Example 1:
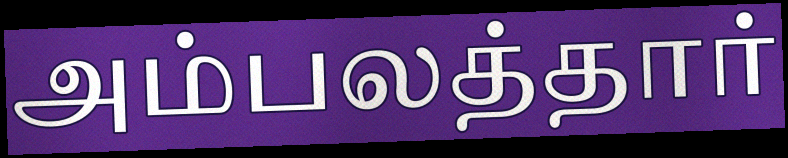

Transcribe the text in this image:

அம்பலத்தார்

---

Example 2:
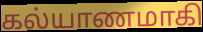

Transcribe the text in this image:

கல்யாணமாகி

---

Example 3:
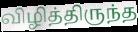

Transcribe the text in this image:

விழித்திருந்த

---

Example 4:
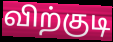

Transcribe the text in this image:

விற்குடி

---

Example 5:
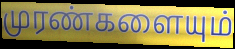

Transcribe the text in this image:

முரண்களையும்